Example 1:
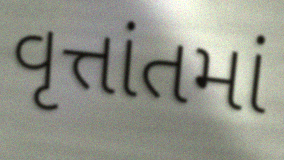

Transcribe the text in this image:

વૃત્તાંતમાં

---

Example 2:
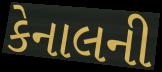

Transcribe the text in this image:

કેનાલની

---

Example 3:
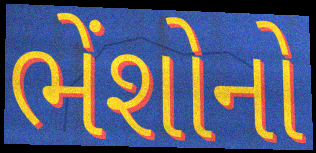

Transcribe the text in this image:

ભેંશોનો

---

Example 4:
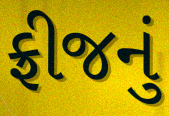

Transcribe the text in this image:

ફ્રીજનું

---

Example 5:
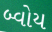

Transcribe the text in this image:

બ્વોય